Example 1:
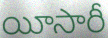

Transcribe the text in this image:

యీసారీ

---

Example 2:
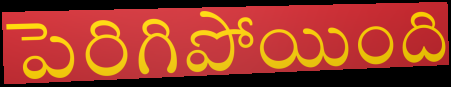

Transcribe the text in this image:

పెరిగిపోయింది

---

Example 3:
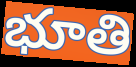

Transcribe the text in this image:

భూతి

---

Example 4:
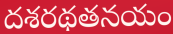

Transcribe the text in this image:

దశరథతనయం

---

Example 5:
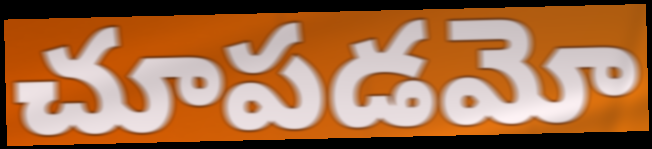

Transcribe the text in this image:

చూపడమో